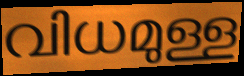
വിധമുള്ള